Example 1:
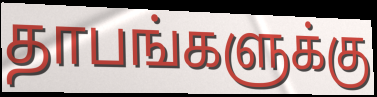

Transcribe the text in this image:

தாபங்களுக்கு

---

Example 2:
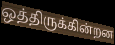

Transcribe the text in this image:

ஒத்திருக்கின்றன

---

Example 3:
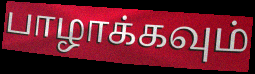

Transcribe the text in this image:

பாழாக்கவும்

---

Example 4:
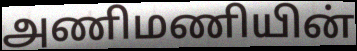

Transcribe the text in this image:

அணிமணியின்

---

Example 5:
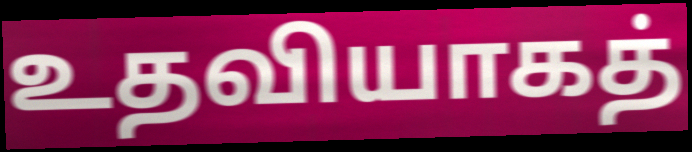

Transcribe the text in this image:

உதவியாகத்